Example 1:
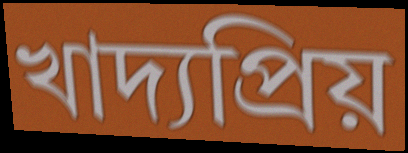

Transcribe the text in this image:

খাদ্যপ্রিয়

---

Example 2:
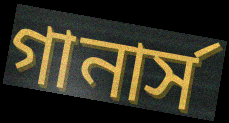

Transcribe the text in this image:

গানার্স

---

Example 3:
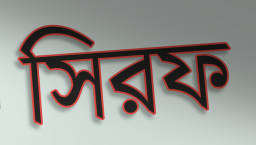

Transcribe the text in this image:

সিরফ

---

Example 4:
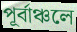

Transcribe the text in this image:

পূর্বাঞ্চলে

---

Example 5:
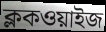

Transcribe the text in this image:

ক্লকওয়াইজ